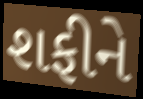
શફીને